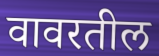
वावरतील